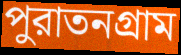
পুরাতনগ্রাম